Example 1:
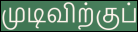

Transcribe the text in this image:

முடிவிற்குப்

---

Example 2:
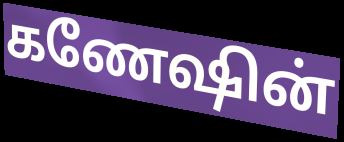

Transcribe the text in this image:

கணேஷின்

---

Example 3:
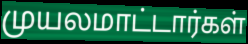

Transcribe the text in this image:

முயலமாட்டார்கள்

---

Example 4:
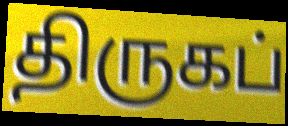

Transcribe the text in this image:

திருகப்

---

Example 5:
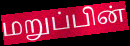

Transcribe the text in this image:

மறுப்பின்